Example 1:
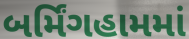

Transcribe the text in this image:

બર્મિંગહામમાં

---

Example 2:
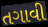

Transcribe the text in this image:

તગાવી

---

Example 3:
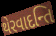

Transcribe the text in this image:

થેરવાદન્તિ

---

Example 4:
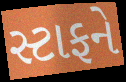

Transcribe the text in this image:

સ્ટાફને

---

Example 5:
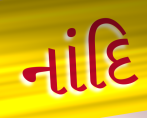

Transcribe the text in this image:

નાંદિ